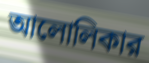
আলোলিকার